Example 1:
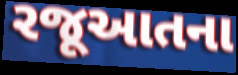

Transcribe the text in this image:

રજૂઆતના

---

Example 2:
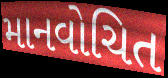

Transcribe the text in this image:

માનવોચિત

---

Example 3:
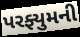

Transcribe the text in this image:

પરફ્યુમની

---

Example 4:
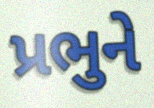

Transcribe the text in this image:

પ્રભુને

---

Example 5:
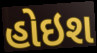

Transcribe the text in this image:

હોઇશ